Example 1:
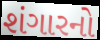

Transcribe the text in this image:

શંગારનો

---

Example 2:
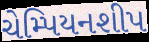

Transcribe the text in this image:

ચેમ્પિયનશીપ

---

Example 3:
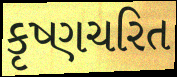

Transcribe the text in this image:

કૃષ્ણચરિત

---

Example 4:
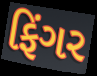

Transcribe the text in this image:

ફિંગર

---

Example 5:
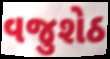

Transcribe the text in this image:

વજુશેઠ